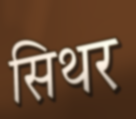
सिथर